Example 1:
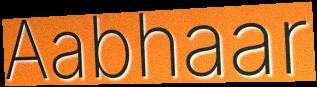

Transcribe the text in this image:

Aabhaar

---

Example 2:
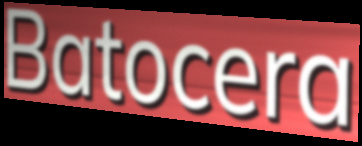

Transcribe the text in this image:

Batocera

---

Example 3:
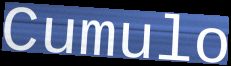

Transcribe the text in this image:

Cumulo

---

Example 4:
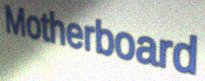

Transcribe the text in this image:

Motherboard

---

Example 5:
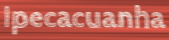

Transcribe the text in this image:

Ipecacuanha